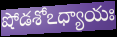
షోడశోఽధ్యాయః